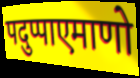
पदुप्पाएमाणो